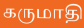
கருமாதி